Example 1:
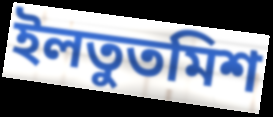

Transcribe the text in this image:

ইলতুতমিশ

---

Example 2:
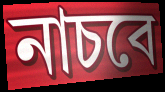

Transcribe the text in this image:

নাচবে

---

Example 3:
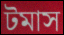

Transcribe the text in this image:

টমাস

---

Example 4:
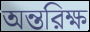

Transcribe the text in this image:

অন্তরিক্ষ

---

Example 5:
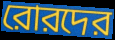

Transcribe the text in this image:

রোরদের